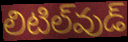
లిటిల్‌వుడ్